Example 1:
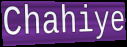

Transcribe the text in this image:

Chahiye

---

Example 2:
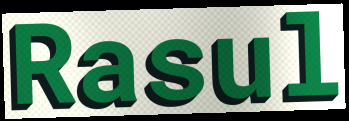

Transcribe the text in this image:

Rasul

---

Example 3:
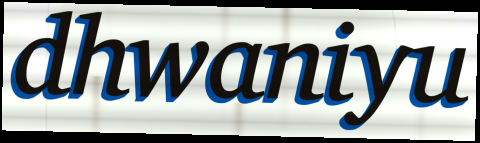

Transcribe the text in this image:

dhwaniyu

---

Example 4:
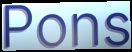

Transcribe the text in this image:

Pons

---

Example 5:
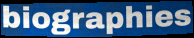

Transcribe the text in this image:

biographies